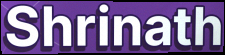
Shrinath